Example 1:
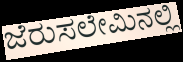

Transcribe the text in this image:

ಜೆರುಸಲೇಮಿನಲ್ಲಿ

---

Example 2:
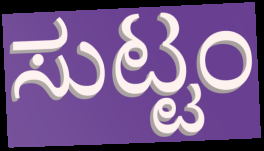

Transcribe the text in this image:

ಸುಟ್ಟಂ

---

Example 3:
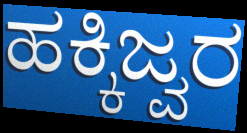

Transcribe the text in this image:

ಹಕ್ಕಿಜ್ವರ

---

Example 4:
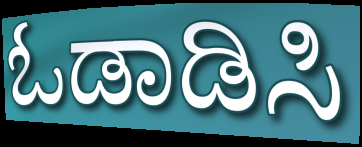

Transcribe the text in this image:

ಓಡಾಡಿಸಿ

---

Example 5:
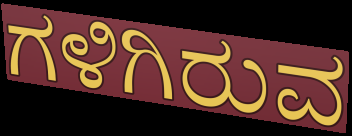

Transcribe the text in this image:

ಗಳಿಗಿರುವ